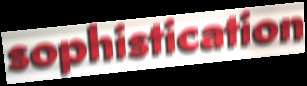
sophistication